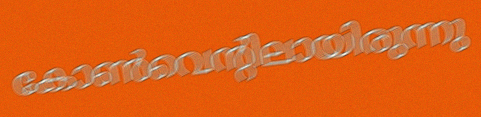
കോൺവെന്റിലായിരുന്നു